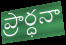
ప్రార్ధనా